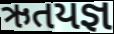
ઋતયજ્ઞ